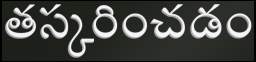
తస్కరించడం